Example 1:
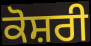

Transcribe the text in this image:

ਕੋਸ਼ਰੀ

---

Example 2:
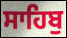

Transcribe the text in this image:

ਸਾਹਿਬੁ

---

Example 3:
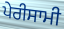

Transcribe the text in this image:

ਪੇਰੀਸਾਮੀ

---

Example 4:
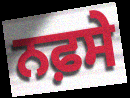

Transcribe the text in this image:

ਨਫ਼ਸੇ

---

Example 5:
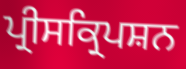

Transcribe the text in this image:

ਪ੍ਰੀਸਕ੍ਰਿਪਸ਼ਨ